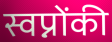
स्वप्नोंकी